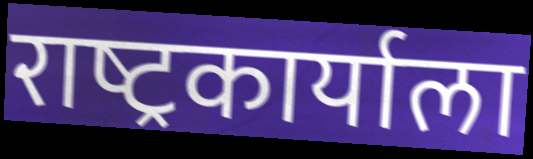
राष्ट्रकार्याला